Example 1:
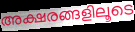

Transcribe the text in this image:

അക്ഷരങ്ങളിലൂടെ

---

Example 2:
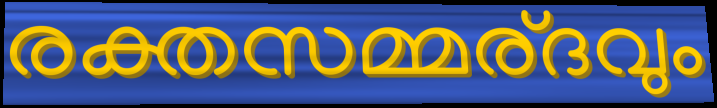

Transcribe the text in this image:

രക്തസമ്മര്ദവും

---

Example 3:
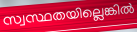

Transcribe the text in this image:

സ്വസ്ഥതയില്ലെങ്കിൽ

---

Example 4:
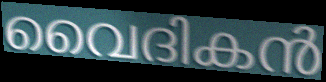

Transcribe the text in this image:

വൈദികൻ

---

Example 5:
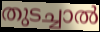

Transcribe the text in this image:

തുടച്ചാൽ